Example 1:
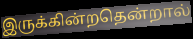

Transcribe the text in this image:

இருக்கின்றதென்றால்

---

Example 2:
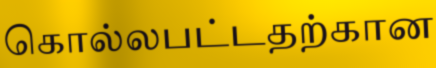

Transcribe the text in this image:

கொல்லபட்டதற்கான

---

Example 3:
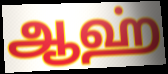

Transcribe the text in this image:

ஆஹ்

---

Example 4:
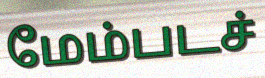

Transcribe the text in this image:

மேம்படச்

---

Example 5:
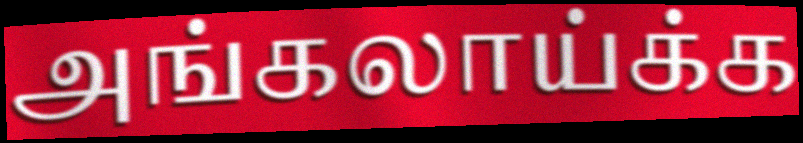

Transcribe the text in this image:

அங்கலாய்க்க